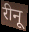
रीनू